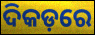
ଦିକଡ଼ରେ